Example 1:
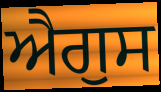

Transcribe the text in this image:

ਐਗੁਸ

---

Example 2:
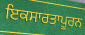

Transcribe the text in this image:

ਇਕਸਾਰਤਾਪੂਰਨ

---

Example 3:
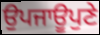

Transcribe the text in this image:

ਉਪਜਾਊਪੁਣੇ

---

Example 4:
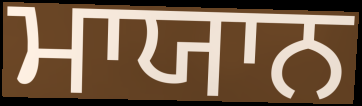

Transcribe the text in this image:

ਮਾਯਾਨ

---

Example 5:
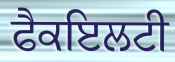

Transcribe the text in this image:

ਫੈਕਇਲਟੀ